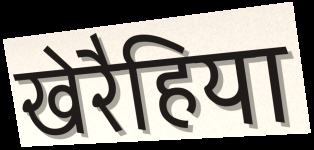
खेरैहिया